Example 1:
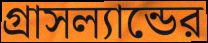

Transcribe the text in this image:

গ্রাসল্যান্ডের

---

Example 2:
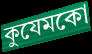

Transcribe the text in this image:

কুযেমকো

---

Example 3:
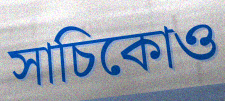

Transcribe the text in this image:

সাচিকোও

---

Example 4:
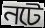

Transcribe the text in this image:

নটে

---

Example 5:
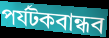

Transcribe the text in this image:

পর্যটকবান্ধব